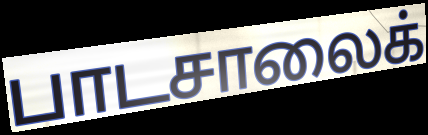
பாடசாலைக்